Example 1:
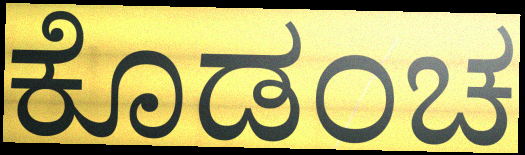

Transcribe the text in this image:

ಕೊಡಂಚ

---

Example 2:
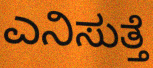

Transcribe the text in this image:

ಎನಿಸುತ್ತೆ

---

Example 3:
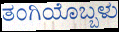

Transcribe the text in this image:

ತಂಗಿಯೊಬ್ಬಳು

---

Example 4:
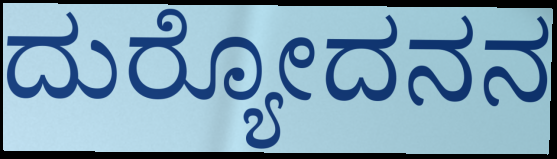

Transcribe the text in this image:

ದುರ್‍ಯೋದನನ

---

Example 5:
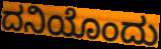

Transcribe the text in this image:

ದನಿಯೊಂದು